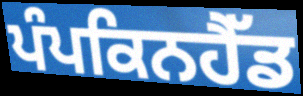
ਪੰਪਕਿਨਹੈੱਡ